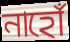
নাহোঁ